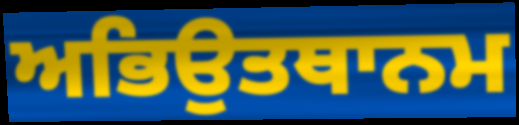
ਅਭਿਉਤਥਾਨਮ